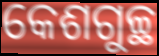
କେଶଗୁଚ୍ଛ